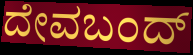
ದೇವಬಂದ್